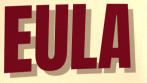
EULA